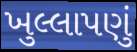
ખુલ્લાપણું